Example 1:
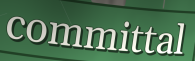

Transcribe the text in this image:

committal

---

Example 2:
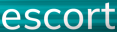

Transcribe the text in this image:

escort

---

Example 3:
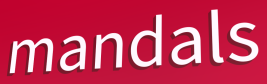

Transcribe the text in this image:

mandals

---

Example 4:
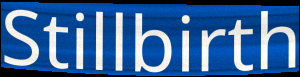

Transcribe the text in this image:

Stillbirth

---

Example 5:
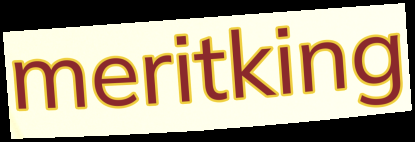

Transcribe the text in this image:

meritking